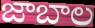
జాబాల